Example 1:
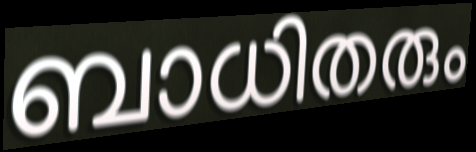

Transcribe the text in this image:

ബാധിതരും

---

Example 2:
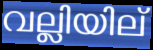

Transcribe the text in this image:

വല്ലിയില്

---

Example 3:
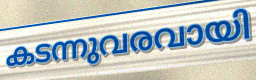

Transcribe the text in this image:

കടന്നുവരവായി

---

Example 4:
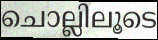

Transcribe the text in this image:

ചൊല്ലിലൂടെ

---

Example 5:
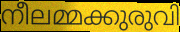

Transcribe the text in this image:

നീലമ്മക്കുരുവി